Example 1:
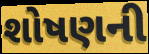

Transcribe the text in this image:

શોષણની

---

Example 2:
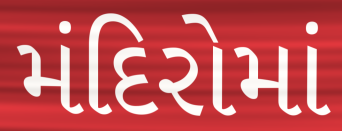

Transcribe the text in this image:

મંદિરોમાં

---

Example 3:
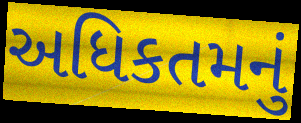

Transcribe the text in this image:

અધિકતમનું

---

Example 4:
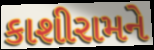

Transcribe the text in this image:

કાશીરામને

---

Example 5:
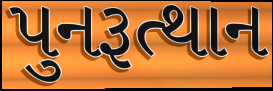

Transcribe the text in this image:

પુનરૂત્થાન